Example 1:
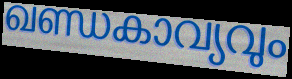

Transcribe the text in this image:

ഖണ്ഡകാവ്യവും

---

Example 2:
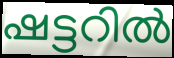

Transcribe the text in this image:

ഷട്ടറിൽ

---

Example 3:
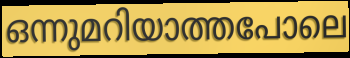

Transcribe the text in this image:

ഒന്നുമറിയാത്തപോലെ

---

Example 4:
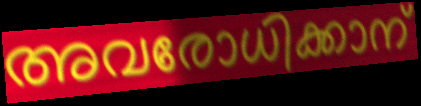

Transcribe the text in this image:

അവരോധിക്കാന്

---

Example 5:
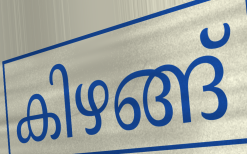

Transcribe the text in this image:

കിഴങ്ങ്